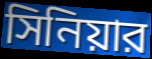
সিনিয়ার